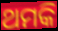
ଥମକି